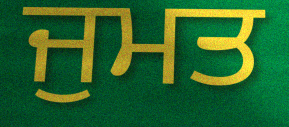
ਜੁਮਤ